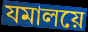
যমালয়ে